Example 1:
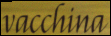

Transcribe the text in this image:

vacchina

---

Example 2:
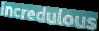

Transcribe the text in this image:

incredulous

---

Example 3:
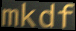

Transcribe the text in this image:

mkdf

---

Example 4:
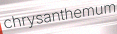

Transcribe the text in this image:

chrysanthemum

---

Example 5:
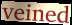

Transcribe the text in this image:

veined